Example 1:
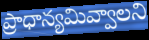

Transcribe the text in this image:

ప్రాధాన్యమివ్వాలని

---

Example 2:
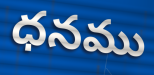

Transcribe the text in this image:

ధనము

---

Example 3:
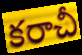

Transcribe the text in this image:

కరాచీ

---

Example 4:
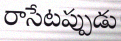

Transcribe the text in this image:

రాసేటప్పుడు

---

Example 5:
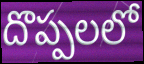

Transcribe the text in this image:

దొప్పలలో